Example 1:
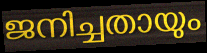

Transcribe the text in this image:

ജനിച്ചതായും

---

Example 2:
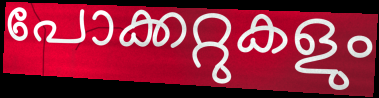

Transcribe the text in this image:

പോക്കറ്റുകളും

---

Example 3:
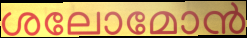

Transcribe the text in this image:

ശലോമോൻ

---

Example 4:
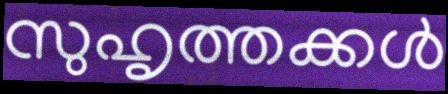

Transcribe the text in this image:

സുഹൃത്തക്കൾ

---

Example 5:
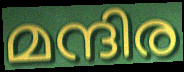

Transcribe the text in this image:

മന്ദിര